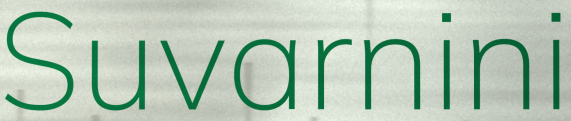
Suvarnini